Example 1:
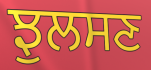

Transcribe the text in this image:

ਝੁਲਸਣ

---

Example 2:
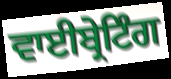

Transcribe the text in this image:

ਵਾਈਬ੍ਰੇਟਿੰਗ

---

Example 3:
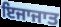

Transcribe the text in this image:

ਇਜਾਜਾਤ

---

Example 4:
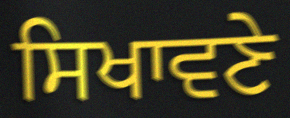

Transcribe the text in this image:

ਸਿਖਾਵਣੇ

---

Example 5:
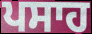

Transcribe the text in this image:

ਪਸਾਹ